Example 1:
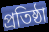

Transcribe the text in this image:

প্রতিষ্ঠা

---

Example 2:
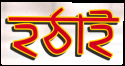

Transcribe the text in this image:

হঠাই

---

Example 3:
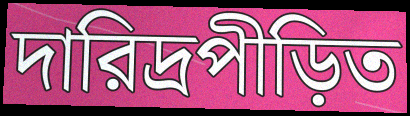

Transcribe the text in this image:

দারিদ্রপীড়িত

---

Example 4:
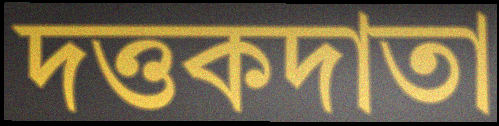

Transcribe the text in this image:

দত্তকদাতা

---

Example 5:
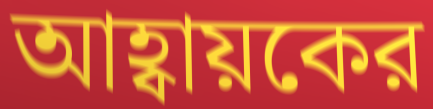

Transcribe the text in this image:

আহ্বায়কের